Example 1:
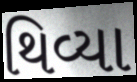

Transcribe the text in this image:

થિવ્યા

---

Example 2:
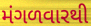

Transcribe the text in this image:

મંગળવારથી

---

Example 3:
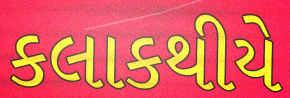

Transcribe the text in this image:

કલાકથીયે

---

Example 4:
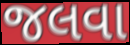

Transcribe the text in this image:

જલવા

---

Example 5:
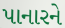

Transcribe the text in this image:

પાનારને